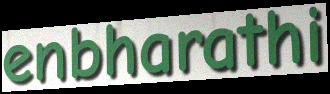
enbharathi